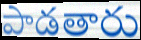
పాడతారు